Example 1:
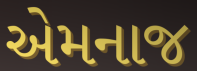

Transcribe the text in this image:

એમનાજ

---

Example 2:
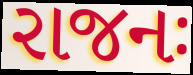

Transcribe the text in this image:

રાજનઃ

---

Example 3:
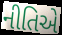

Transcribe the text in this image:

નીતિએ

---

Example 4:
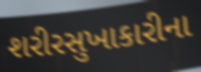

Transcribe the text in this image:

શરીરસુખાકારીના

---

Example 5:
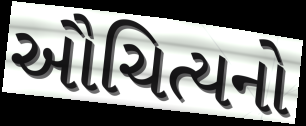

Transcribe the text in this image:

ઔચિત્યનો